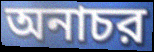
অনাচর